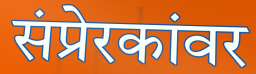
संप्रेरकांवर